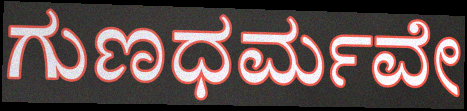
ಗುಣಧರ್ಮವೇ